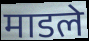
माडले